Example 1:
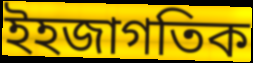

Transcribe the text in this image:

ইহজাগতিক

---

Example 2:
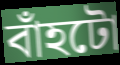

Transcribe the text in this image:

বাঁহটো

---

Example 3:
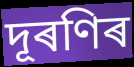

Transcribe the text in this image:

দূৰণিৰ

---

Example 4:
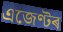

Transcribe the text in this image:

এজেণ্টৰ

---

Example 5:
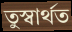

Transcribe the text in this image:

তুস্বাৰ্থত